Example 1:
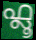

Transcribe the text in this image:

ഫ്ലൂ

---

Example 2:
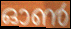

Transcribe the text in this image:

ഓൺ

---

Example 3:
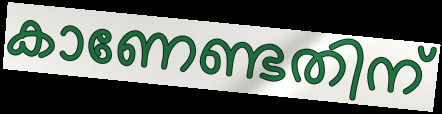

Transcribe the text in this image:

കാണേണ്ടതിന്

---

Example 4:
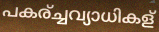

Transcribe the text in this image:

പകര്ച്ചവ്യാധികള്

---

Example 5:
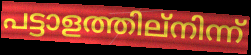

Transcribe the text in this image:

പട്ടാളത്തില്നിന്ന്